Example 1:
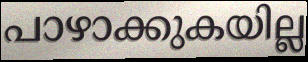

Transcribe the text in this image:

പാഴാക്കുകയില്ല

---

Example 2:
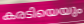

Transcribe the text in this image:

കരടിയെയും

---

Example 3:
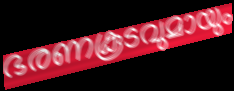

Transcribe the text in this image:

ഭരണകൂടവുമായും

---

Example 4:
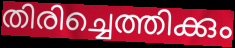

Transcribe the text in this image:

തിരിച്ചെത്തിക്കും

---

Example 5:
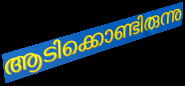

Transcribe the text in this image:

ആടിക്കൊണ്ടിരുന്നു